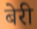
बेरी